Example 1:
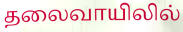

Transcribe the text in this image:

தலைவாயிலில்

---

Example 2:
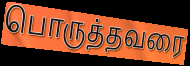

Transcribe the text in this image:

பொருத்தவரை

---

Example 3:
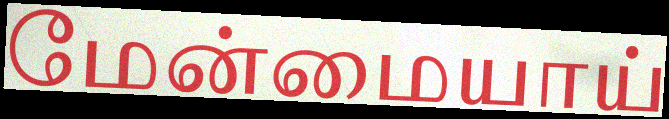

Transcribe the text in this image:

மேன்மையாய்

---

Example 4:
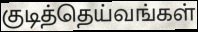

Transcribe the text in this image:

குடித்தெய்வங்கள்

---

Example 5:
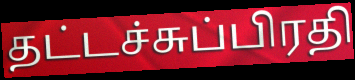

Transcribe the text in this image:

தட்டச்சுப்பிரதி